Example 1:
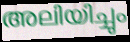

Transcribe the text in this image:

അലിയിച്ചും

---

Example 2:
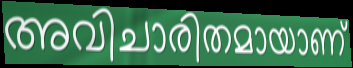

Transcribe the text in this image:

അവിചാരിതമായാണ്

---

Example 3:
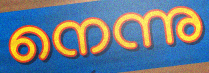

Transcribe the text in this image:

നെന്നു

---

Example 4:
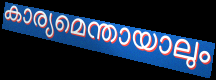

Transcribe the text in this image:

കാര്യമെന്തായാലും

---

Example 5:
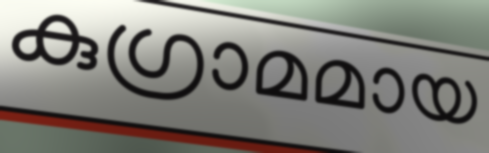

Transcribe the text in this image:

കുഗ്രാമമായ